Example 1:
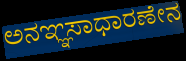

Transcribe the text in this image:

ಅನಞ್ಞಸಾಧಾರಣೇನ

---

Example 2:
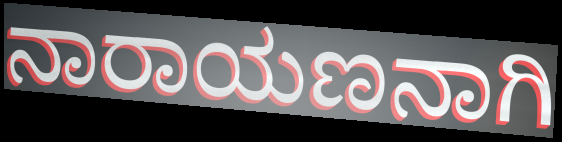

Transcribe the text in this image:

ನಾರಾಯಣನಾಗಿ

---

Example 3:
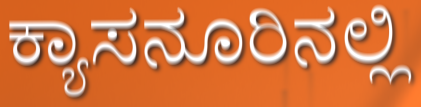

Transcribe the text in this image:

ಕ್ಯಾಸನೂರಿನಲ್ಲಿ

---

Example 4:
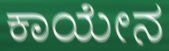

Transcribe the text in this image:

ಕಾಯೇನ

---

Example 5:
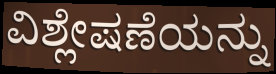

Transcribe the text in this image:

ವಿಶ್ಲೇಷಣೆಯನ್ನು